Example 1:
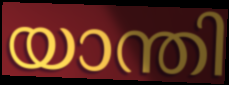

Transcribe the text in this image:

യാന്തി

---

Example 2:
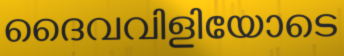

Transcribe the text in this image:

ദൈവവിളിയോടെ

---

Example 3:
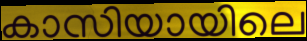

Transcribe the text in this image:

കാസിയായിലെ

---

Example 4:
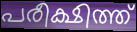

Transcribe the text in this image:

പരീക്ഷിത്ത്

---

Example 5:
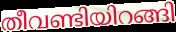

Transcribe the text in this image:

തീവണ്ടിയിറങ്ങി